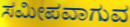
ಸಮೀಪವಾಗುವ